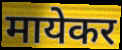
मायेकर